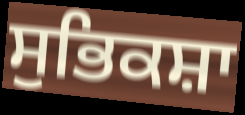
ਸੁਭਿਕਸ਼ਾ